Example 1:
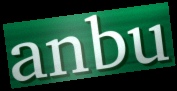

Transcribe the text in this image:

anbu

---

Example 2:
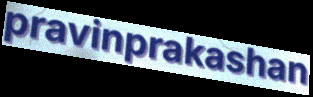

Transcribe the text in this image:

pravinprakashan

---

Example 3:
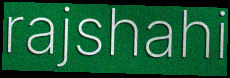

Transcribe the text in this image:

rajshahi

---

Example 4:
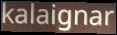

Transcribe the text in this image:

kalaignar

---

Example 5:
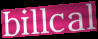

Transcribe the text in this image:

billcal